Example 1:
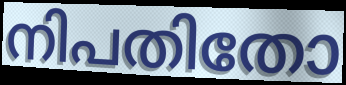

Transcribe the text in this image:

നിപതിതോ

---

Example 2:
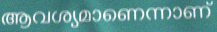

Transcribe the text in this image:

ആവശ്യമാണെന്നാണ്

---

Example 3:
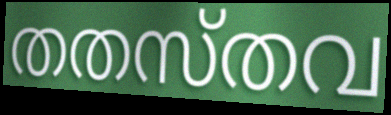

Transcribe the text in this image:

തതസ്തവ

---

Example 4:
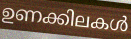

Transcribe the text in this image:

ഉണക്കിലകൾ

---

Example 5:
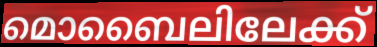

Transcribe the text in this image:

മൊബൈലിലേക്ക്